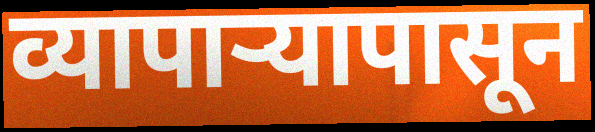
व्यापाऱ्यापासून